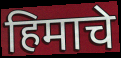
हिमाचे